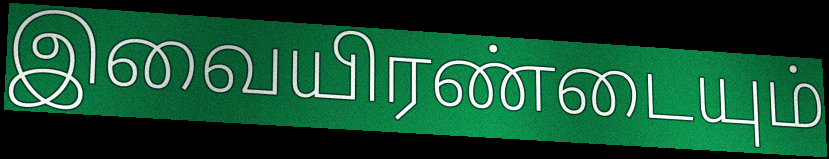
இவையிரண்டையும்